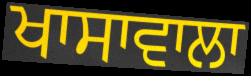
ਖਾਸਾਵਾਲਾ